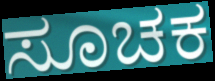
ಸೂಚಕ